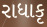
રાધાકૃ